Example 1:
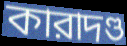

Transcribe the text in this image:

কারাদণ্ড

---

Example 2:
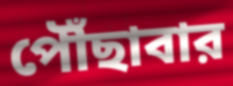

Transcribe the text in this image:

পৌঁছাবার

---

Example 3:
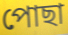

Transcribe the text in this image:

পোছা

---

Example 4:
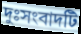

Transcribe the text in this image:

দুঃসংবাদটি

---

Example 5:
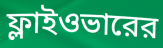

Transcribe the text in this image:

ফ্লাইওভারের